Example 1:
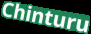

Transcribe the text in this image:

Chinturu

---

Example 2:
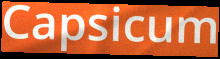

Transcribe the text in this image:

Capsicum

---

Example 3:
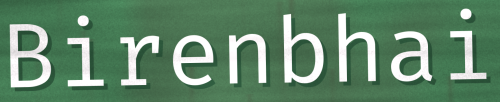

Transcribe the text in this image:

Birenbhai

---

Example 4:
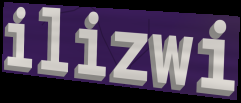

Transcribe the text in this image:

ilizwi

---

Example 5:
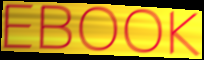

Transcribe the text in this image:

EBOOK